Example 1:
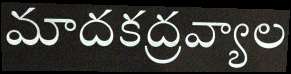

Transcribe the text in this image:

మాదకద్రవ్యాల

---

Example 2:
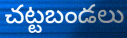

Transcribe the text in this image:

చట్టబండలు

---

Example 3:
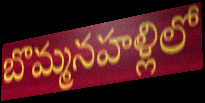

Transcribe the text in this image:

బొమ్మనహళ్లిలో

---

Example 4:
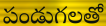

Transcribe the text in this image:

పండుగలతో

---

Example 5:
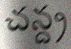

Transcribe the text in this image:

చన్ద్ర